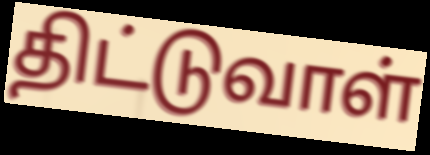
திட்டுவாள்